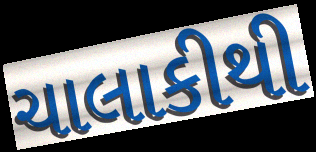
ચાલાકીથી